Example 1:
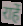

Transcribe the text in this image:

राहें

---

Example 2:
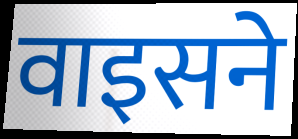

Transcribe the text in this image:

वाइसने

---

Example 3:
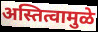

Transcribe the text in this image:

अस्तित्वामुळे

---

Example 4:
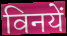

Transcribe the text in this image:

विनयें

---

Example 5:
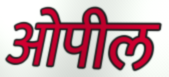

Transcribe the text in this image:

ओपील